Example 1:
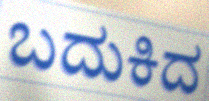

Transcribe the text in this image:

ಬದುಕಿದ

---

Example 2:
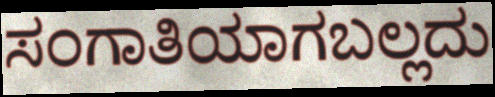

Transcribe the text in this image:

ಸಂಗಾತಿಯಾಗಬಲ್ಲದು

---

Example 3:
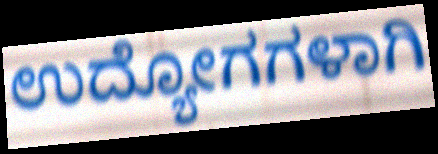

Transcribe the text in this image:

ಉದ್ಯೋಗಗಳಾಗಿ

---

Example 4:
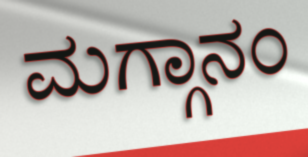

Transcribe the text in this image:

ಮಗ್ಗಾನಂ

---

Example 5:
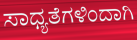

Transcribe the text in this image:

ಸಾಧ್ಯತೆಗಳಿಂದಾಗಿ